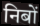
निबों